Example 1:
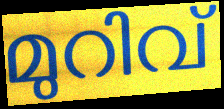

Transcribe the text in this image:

മുറിവ്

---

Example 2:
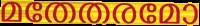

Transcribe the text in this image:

മതേതരമോ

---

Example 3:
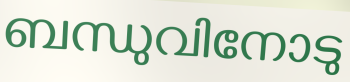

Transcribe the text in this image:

ബന്ധുവിനോടു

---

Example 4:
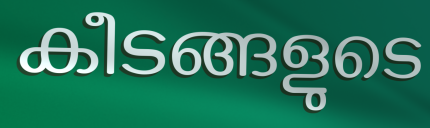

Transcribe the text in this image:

കീടങ്ങളുടെ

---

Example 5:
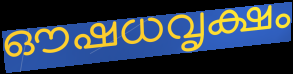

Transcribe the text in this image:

ഔഷധവൃക്ഷം